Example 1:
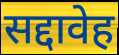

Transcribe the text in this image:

सद्दावेह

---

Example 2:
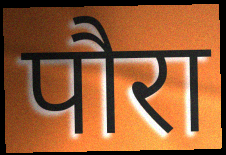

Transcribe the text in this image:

पौरा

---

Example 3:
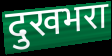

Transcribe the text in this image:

दुखभरा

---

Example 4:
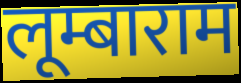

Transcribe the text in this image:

लूम्बाराम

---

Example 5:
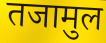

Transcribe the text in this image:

तजामुल